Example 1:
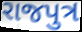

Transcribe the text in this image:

રાજપુત્ર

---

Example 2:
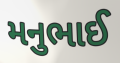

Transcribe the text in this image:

મનુભાઈ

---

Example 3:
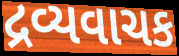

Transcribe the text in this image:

દ્રવ્યવાચક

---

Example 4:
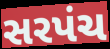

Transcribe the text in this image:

સરપંચ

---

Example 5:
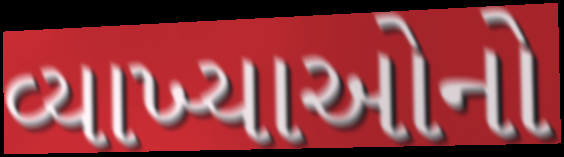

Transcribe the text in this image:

વ્યાખ્યાઓનો